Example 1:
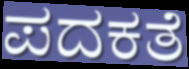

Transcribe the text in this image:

ಪದಕತೆ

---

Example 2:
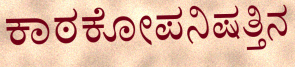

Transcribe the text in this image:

ಕಾಠಕೋಪನಿಷತ್ತಿನ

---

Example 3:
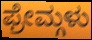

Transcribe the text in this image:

ಫ್ರೇಮ್ಗಳು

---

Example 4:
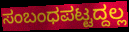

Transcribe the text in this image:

ಸಂಬಂಧಪಟ್ಟದ್ದಲ್ಲ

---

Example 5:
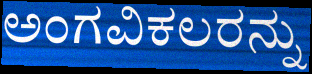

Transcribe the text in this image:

ಅಂಗವಿಕಲರನ್ನು